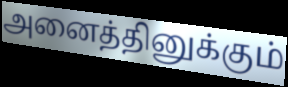
அனைத்தினுக்கும்